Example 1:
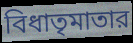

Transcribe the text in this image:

বিধাতৃমাতার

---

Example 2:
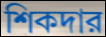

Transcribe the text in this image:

শিকদার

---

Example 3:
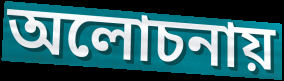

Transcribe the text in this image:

অলোচনায়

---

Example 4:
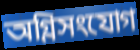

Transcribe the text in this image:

অগ্নিসংযোগ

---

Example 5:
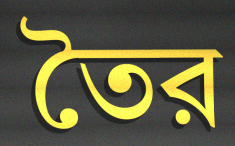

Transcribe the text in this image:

তৈর